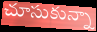
చూసుకున్నా